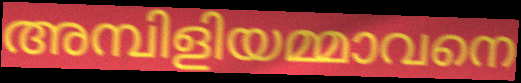
അമ്പിളിയമ്മാവനെ